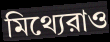
মিথ্যেরাও